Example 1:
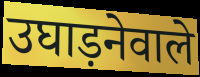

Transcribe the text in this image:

उघाड़नेवाले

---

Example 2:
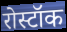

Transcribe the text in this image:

रोस्टॉक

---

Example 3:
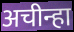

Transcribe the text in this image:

अचीन्हा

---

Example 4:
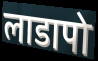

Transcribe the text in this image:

लाडापो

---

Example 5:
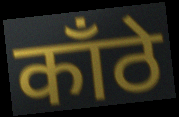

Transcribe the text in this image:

काँठे